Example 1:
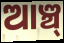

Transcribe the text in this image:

ଆଞ୍ଚ୍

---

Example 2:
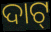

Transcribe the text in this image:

ଦାଟ୍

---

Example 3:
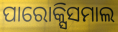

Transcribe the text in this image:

ପାରୋକ୍ସିସମାଲ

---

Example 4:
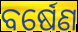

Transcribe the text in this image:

ବର୍ଷେଣ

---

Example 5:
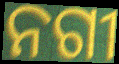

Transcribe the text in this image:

ନଗୀ